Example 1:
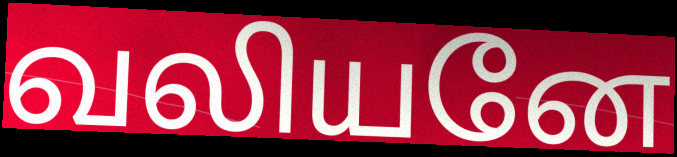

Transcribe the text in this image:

வலியனே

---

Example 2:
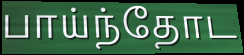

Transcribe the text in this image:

பாய்ந்தோட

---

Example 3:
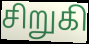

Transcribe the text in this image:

சிறுகி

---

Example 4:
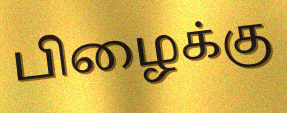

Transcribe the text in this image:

பிழைக்கு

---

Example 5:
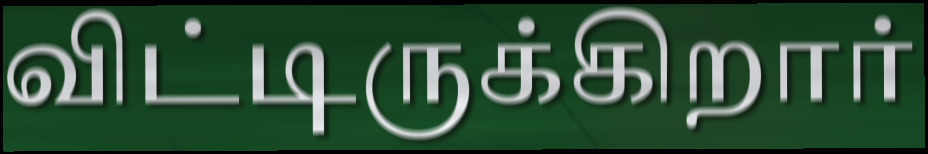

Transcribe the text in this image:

விட்டிருக்கிறார்